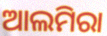
ଆଲମିରା